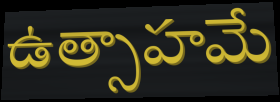
ఉత్సాహమే